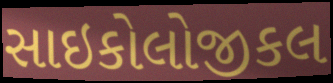
સાઇકોલોજીકલ